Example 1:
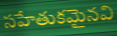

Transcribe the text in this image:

సహేతుకమైనవి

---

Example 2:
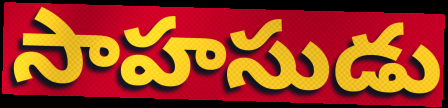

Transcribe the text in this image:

సాహసుడు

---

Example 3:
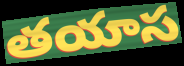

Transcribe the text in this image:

తయాస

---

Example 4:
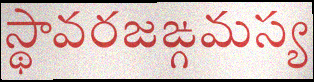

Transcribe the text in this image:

స్థావరజఙ్గమస్య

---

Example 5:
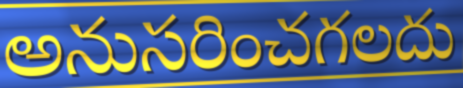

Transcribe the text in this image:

అనుసరించగలదు